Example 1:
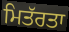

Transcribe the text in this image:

ਮਿਤੱਰਤਾ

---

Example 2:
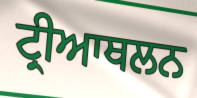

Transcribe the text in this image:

ਟ੍ਰੀਆਥਲਨ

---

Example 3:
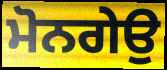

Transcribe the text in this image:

ਮੋਨਗੇਉ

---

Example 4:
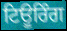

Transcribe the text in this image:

ਟਿਊਰਿੰਗ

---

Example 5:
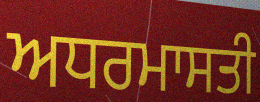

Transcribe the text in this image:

ਅਧਰਮਾਸਤੀ